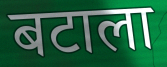
बटाला